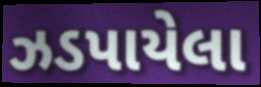
ઝડપાયેલા